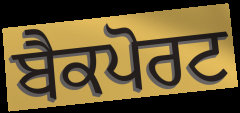
ਬੈਕਪੋਰਟ